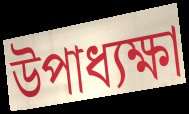
উপাধ্যক্ষা